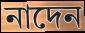
নাদেন